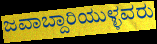
ಜವಾಬ್ದಾರಿಯುಳ್ಳವರು